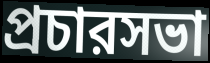
প্রচারসভা